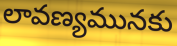
లావణ్యమునకు